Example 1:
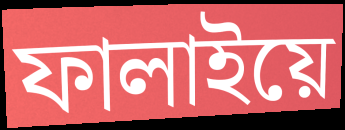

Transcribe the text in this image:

ফালাইয়ে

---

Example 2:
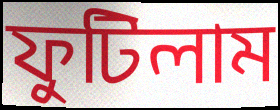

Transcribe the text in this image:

ফুটিলাম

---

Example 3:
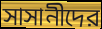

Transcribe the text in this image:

সাসানীদের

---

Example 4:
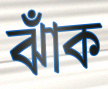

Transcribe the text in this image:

ঝাঁক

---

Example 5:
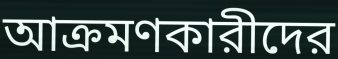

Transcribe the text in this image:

আক্রমণকারীদের